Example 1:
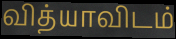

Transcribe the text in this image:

வித்யாவிடம்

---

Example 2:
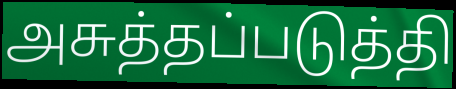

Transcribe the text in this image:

அசுத்தப்படுத்தி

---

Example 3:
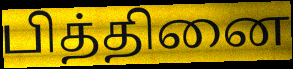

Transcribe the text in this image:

பித்தினை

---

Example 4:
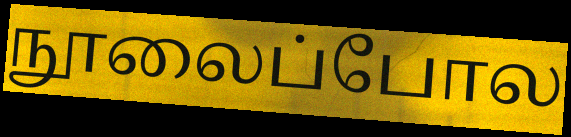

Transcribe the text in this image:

நூலைப்போல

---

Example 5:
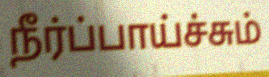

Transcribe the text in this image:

நீர்ப்பாய்ச்சும்